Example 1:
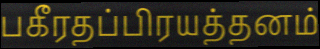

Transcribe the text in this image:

பகீரதப்பிரயத்தனம்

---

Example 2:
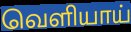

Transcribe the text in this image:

வெளியாய்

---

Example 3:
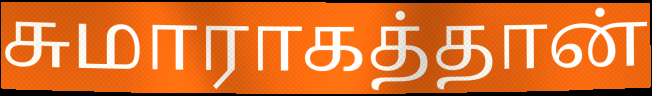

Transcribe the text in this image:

சுமாராகத்தான்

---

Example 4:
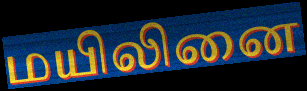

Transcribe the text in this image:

மயிலினை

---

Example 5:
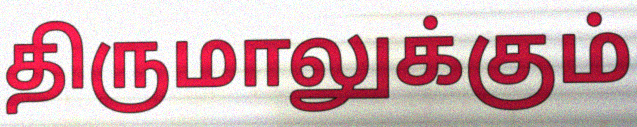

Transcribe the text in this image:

திருமாலுக்கும்